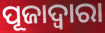
ପୂଜାଦ୍ଵାରା